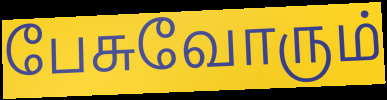
பேசுவோரும்